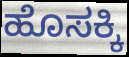
ಹೊಸಕ್ಕಿ